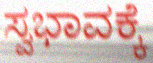
ಸ್ವಭಾವಕ್ಕೆ